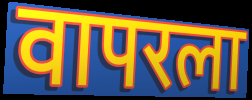
वापरला